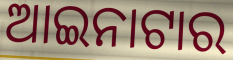
ଆଇନାଟାର